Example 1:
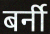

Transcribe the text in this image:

बर्नी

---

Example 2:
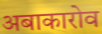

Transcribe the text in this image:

अबाकारोव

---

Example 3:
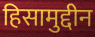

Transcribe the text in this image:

हिसामुद्दीन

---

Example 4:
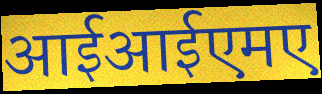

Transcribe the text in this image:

आईआईएमए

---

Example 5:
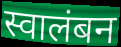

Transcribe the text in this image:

स्वालंबन